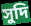
সুদি